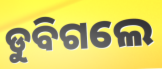
ଡୁବିଗଲେ